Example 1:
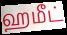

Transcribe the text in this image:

ஹமீட்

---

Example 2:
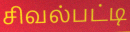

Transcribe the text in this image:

சிவல்பட்டி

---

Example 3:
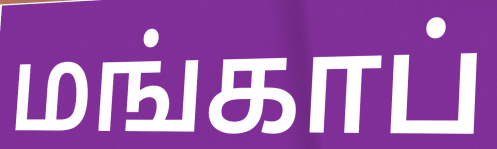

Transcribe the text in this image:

மங்காப்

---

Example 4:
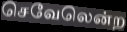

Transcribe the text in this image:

செவேலென்ற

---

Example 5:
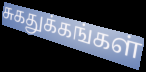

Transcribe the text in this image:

சுகதுக்கங்கள்